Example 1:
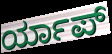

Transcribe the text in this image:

ರ್ಯಾಪ್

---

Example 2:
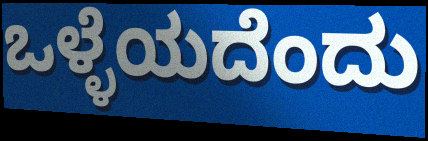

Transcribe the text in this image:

ಒಳ್ಳೆಯದೆಂದು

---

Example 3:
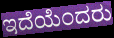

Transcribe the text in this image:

ಇದೆಯೆಂದರು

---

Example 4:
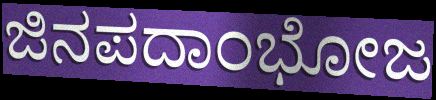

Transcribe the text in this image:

ಜಿನಪದಾಂಭೋಜ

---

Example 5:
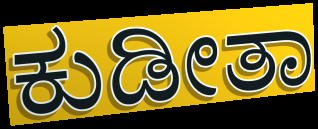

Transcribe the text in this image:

ಕುಡೀತಾ